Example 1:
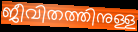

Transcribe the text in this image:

ജീവിതത്തിനുള്ള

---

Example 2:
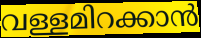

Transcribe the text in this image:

വള്ളമിറക്കാൻ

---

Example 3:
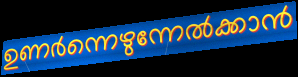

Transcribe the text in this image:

ഉണർന്നെഴുന്നേൽക്കാൻ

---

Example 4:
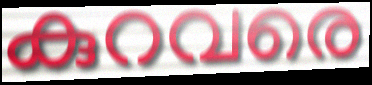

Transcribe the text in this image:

കുറവരെ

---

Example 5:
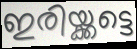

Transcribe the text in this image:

ഇരിയ്ക്കട്ടെ